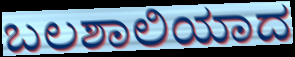
ಬಲಶಾಲಿಯಾದ